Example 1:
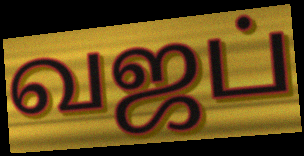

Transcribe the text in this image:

வஜப்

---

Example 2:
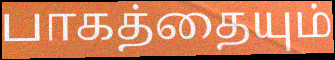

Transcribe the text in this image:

பாகத்தையும்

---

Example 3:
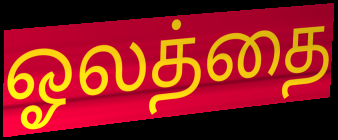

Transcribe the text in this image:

ஓலத்தை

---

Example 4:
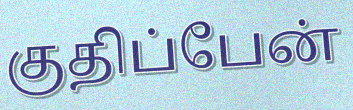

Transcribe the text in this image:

குதிப்பேன்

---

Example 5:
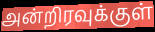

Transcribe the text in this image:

அன்றிரவுக்குள்